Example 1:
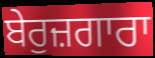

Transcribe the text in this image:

ਬੇਰੁਜ਼ਗਾਰਾ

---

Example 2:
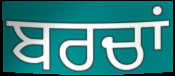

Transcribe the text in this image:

ਬਰਚਾਂ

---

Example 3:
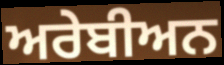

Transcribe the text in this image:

ਅਰੇਬੀਅਨ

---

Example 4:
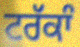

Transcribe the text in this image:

ਟਰੱਕਾੰ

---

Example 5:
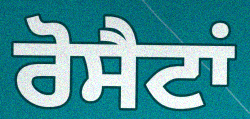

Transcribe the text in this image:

ਰੋਸੈਟਾਂ